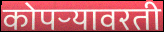
कोपऱ्यावरती